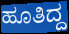
ಹೂತಿದ್ದ